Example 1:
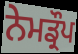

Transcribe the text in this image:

ਨੇਮਡ੍ਰੌਪ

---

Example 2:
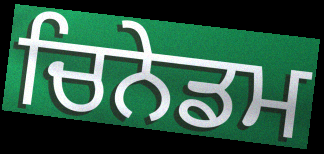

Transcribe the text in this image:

ਚਿਨੇਡਮ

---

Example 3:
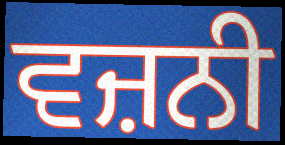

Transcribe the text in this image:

ਵਜ਼ਨੀ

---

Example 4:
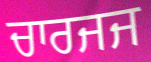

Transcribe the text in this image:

ਚਾਰਜਜ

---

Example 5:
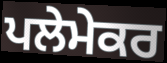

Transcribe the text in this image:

ਪਲੇਮੇਕਰ